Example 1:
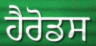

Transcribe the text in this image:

ਹੈਰੋਡਸ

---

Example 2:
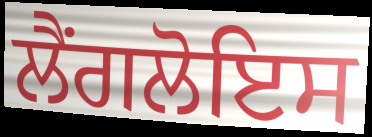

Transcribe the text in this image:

ਲੈਂਗਲੋਇਸ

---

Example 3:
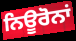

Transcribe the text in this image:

ਨਿਊਰੋਨਾਂ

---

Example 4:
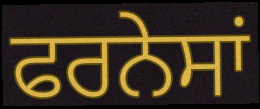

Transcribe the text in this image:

ਫਰਨੇਸਾਂ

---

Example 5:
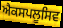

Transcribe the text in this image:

ਐਕਸਪਲੂਸਿਵ